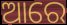
ଆରେ